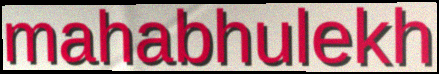
mahabhulekh